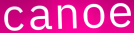
canoe